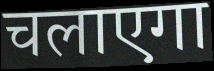
चलाएगा